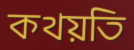
কথয়তি